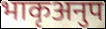
भाकृअनुप